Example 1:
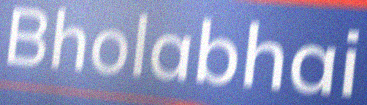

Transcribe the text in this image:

Bholabhai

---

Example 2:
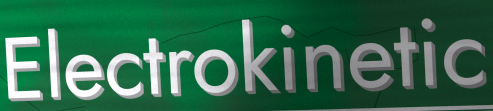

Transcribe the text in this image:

Electrokinetic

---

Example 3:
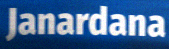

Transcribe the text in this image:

Janardana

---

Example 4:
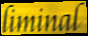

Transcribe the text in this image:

liminal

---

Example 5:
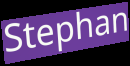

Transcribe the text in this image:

Stephan